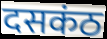
दसकंठ